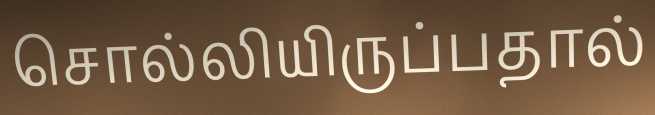
சொல்லியிருப்பதால்